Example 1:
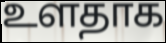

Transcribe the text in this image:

உளதாக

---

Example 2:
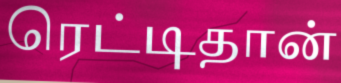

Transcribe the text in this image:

ரெட்டிதான்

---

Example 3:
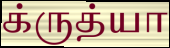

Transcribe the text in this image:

க்ருத்யா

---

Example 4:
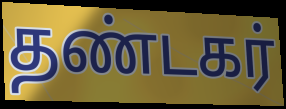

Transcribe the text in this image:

தண்டகர்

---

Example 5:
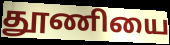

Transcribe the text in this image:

தூணியை